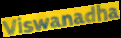
Viswanadha